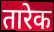
तारेक